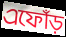
এফোঁড়